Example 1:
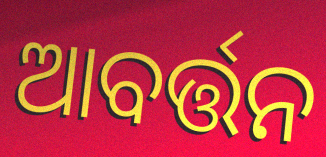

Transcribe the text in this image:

ଆବର୍ତ୍ତନ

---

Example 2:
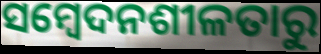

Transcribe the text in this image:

ସମ୍ବେଦନଶୀଳତାରୁ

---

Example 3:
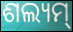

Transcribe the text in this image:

ଶଲ୍ୟମ୍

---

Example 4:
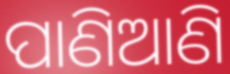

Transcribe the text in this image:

ପାଣିଆଣି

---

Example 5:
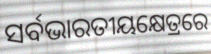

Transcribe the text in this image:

ସର୍ବଭାରତୀୟକ୍ଷେତ୍ରରେ